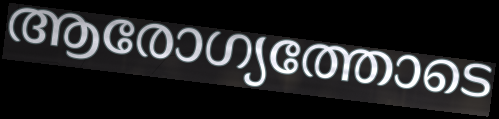
ആരോഗ്യത്തോടെ